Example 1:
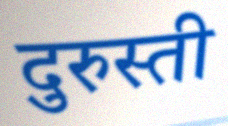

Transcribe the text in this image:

दुरुस्ती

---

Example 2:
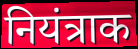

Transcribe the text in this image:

नियंत्राक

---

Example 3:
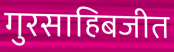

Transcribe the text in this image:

गुरसाहिबजीत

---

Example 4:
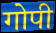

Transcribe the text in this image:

गोपी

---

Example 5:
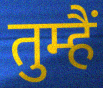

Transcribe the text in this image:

तुम्हैं